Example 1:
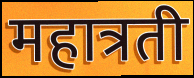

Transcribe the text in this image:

महात्रती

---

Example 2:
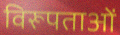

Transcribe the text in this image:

विरूपताओं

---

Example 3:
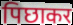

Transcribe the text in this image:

पिछाकर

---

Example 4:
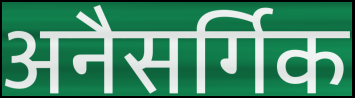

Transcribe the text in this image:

अनैसर्गिक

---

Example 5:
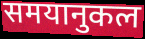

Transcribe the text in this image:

समयानुकल